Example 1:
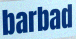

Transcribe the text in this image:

barbad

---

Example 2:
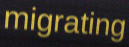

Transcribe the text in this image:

migrating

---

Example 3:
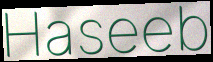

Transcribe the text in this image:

Haseeb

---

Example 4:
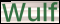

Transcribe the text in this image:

Wulf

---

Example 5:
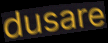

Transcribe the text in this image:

dusare